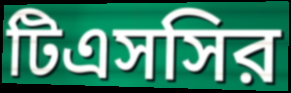
টিএসসির